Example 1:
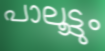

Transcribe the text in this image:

പാലൂട്ടും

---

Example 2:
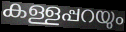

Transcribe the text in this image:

കള്ളപ്പറയും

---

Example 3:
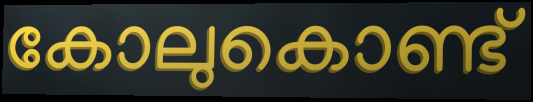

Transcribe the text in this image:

കോലുകൊണ്ട്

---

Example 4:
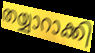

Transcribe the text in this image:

തയ്യാറാക്കി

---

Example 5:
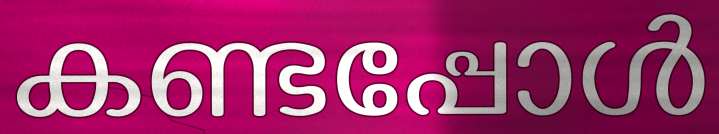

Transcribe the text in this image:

കണ്ടപ്പോൾ